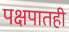
पक्षपातही